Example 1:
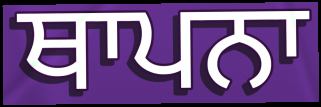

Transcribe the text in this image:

ਥਾਪਨਾ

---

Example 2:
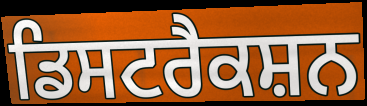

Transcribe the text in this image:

ਡਿਸਟਰੈਕਸ਼ਨ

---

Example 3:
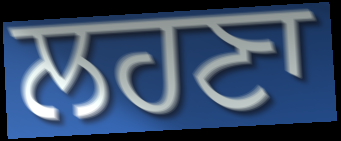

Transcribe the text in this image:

ਲਹਣਾ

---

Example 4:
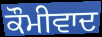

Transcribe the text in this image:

ਕੌਮੀਵਾਦ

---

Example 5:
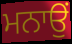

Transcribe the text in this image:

ਮਨਾਉਂ